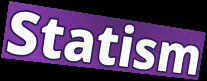
Statism